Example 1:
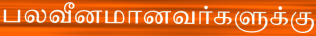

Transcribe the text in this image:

பலவீனமானவர்களுக்கு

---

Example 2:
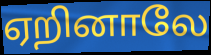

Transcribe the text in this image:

ஏறினாலே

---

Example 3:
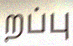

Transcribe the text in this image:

றப்பு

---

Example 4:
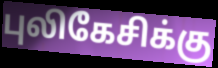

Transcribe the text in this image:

புலிகேசிக்கு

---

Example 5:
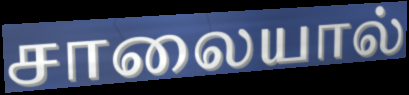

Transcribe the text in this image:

சாலையால்